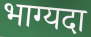
भाग्यदा